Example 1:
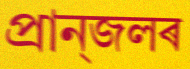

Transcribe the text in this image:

প্ৰান্জলৰ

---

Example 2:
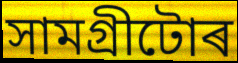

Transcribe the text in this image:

সামগ্ৰীটোৰ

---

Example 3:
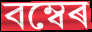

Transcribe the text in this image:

বম্বেৰ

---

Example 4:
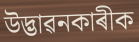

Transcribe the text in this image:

উদ্ভাৱনকাৰীক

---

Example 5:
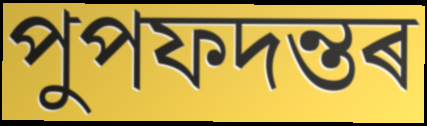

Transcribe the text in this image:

পুপফদন্তৰ